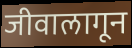
जीवालागून